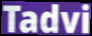
Tadvi